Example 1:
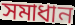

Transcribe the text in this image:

সমাধান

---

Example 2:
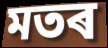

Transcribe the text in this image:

মতৰ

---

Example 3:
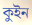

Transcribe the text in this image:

কুইন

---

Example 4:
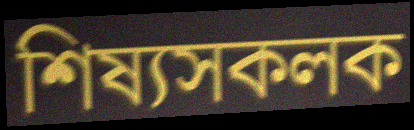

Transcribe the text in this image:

শিষ্যসকলক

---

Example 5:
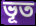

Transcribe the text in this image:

ভূত